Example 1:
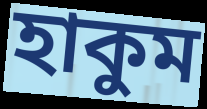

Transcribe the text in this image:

হাকুম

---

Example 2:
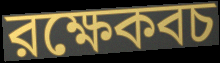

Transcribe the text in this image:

রক্ষেকবচ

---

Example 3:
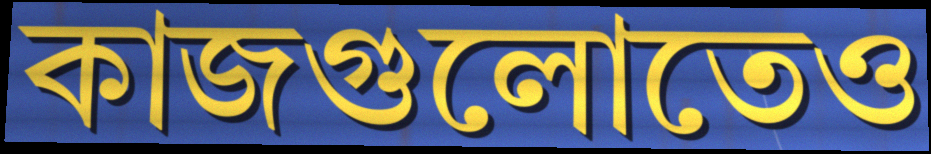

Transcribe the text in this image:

কাজগুলোতেও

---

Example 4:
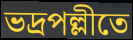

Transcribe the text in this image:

ভদ্রপল্লীতে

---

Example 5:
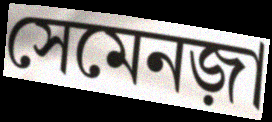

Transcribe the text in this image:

সেমেনজ়া